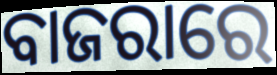
ବାଜରାରେ